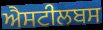
ਐਸਟੀਲਬਸ